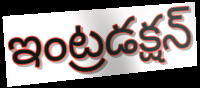
ఇంట్రడక్షన్